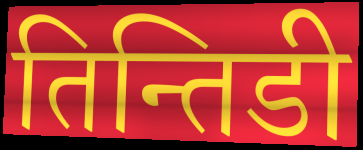
तिन्तिडी